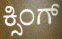
ಕ್ಸಿಂಗ್